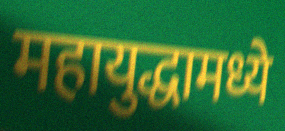
महायुद्धामध्ये